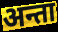
अन्ता